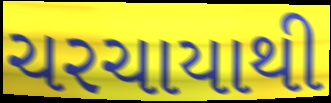
ચરચાયાથી